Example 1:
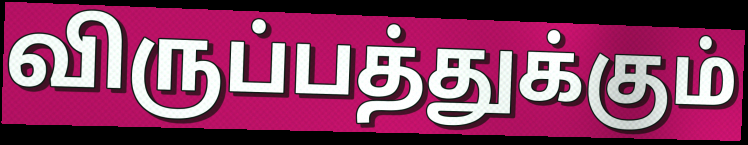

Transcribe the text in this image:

விருப்பத்துக்கும்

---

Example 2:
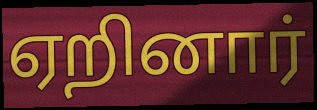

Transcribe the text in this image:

ஏறினார்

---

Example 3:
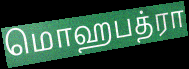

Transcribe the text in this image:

மொஹபத்ரா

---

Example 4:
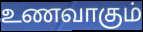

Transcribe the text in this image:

உணவாகும்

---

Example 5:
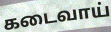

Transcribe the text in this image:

கடைவாய்